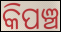
କିପଞ୍ଚ